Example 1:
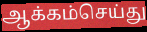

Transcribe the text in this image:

ஆக்கம்செய்து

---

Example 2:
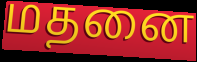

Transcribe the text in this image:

மதனை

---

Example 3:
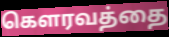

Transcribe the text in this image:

கௌரவத்தை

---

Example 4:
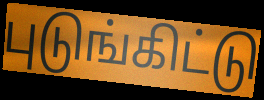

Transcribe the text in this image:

புடுங்கிட்டு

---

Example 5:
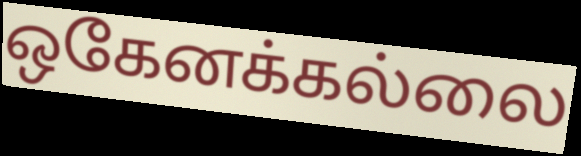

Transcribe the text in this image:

ஒகேனக்கல்லை